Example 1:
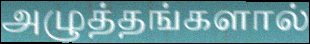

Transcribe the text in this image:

அழுத்தங்களால்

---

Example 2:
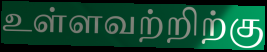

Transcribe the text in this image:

உள்ளவற்றிற்கு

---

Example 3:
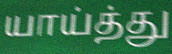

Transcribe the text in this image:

யாய்த்து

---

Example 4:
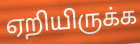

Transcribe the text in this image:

ஏறியிருக்க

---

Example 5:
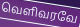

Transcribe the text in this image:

வெளிவரவே